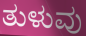
ತುಳುವು